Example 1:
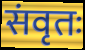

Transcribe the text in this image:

संवृतः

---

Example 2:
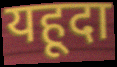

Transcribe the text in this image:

यहूदा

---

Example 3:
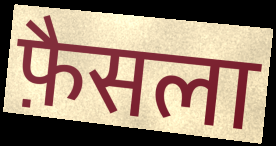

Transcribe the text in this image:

फ़ैसला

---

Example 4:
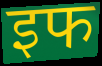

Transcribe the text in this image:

इफ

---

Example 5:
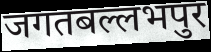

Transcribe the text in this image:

जगतबल्लभपुर